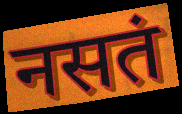
नसतं